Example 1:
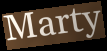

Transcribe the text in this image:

Marty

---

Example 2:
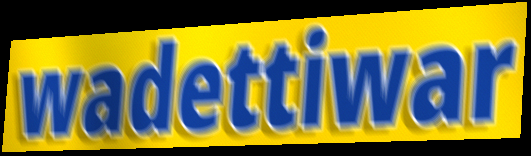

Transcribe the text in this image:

wadettiwar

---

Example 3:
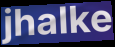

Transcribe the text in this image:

jhalke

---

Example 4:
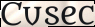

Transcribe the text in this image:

Cusec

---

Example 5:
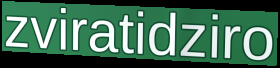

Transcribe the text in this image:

zviratidziro